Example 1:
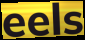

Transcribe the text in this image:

eels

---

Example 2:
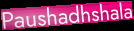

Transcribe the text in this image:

Paushadhshala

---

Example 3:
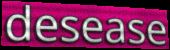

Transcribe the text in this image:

desease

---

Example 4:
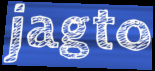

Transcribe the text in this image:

jagto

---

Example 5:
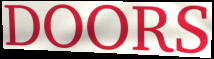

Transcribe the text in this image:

DOORS